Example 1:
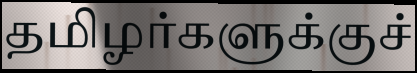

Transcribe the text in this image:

தமிழர்களுக்குச்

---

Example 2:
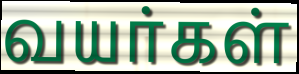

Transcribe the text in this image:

வயர்கள்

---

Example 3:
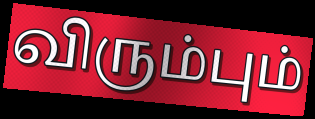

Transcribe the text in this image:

விரும்பும்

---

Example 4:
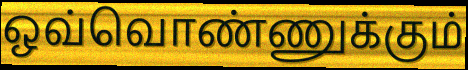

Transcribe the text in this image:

ஒவ்வொண்ணுக்கும்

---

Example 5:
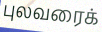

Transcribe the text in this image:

புலவரைக்